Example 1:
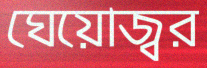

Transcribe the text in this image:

ঘেয়োজ্বর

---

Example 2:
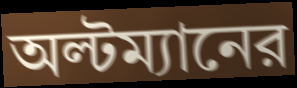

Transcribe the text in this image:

অল্টম্যানের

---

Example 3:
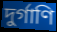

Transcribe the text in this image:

দুর্গাণি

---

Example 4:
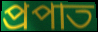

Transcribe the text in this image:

প্রপাত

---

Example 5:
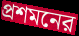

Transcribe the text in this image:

প্রশমনের